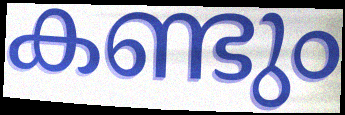
കണ്ടും